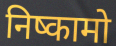
निष्कामो